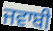
ਜਵਾਬੀ